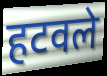
हटवले